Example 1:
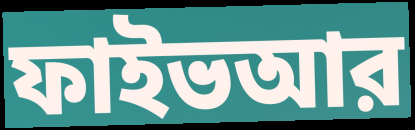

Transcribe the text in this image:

ফাইভআর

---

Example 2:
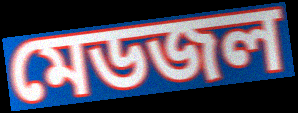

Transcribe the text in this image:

মেডজল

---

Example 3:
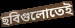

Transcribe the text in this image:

ছবিগুলোতেই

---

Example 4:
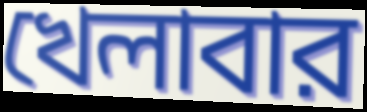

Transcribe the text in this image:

খেলাবার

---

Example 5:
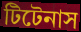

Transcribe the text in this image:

টিটেনাস